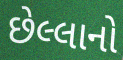
છેલ્લાનો